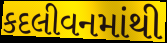
કદલીવનમાંથી